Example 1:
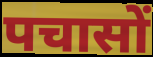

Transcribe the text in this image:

पचासों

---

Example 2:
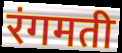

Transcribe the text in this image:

रंगमती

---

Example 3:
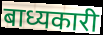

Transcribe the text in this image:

बाध्यकारी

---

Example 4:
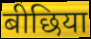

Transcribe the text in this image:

बीछिया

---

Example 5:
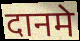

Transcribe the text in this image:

दानमे